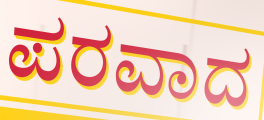
ಪರವಾದ